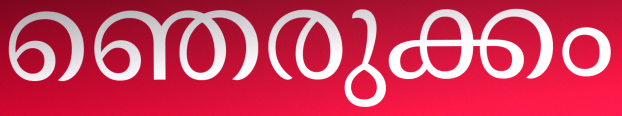
ഞെരുക്കം